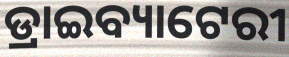
ଡ୍ରାଇବ୍ୟାଟେରୀ